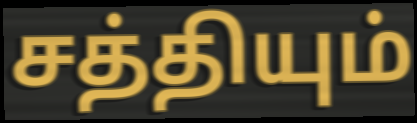
சத்தியும்